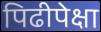
पिढीपेक्षा